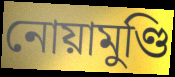
নোয়ামুণ্ডি